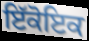
ਇੱਕੋਇਕ